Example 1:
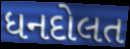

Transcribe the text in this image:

ધનદોલત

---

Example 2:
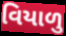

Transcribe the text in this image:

વિયાળુ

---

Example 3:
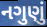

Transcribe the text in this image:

નગુણું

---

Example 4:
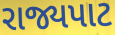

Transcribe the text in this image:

રાજ્યપાટ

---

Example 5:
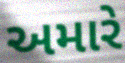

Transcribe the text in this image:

અમારે